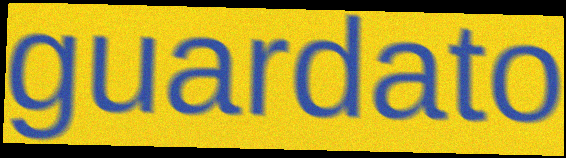
guardato